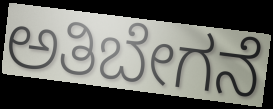
ಅತಿಬೇಗನೆ